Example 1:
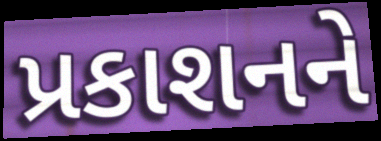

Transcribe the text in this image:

પ્રકાશનને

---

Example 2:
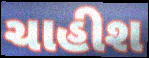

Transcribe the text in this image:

ચાહીશ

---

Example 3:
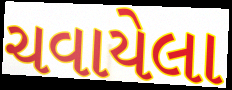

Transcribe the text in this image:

ચવાયેલા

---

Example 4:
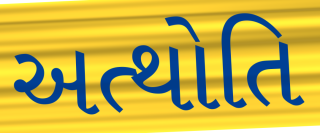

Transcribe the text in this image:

અત્થોતિ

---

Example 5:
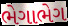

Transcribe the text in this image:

ભેગાભેગ